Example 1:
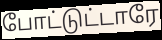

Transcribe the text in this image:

போட்டுட்டாரே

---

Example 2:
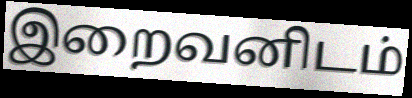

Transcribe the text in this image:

இறைவனிடம்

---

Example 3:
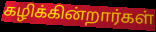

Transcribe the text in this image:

கழிக்கின்றார்கள்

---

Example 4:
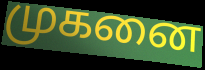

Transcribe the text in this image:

முகனை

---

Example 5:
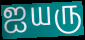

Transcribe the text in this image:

ஐயரு